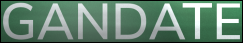
GANDATE